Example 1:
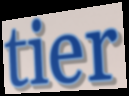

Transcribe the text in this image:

tier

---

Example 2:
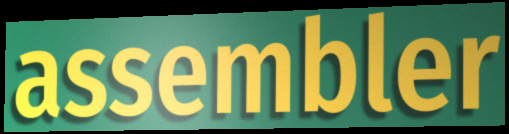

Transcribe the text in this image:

assembler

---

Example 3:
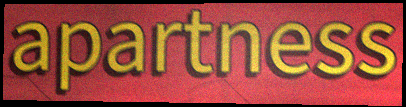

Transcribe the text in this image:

apartness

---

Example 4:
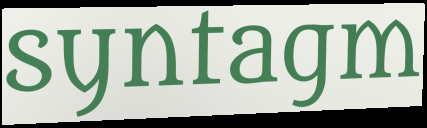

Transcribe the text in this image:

syntagm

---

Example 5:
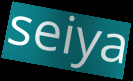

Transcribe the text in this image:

seiya